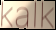
kalk